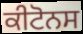
ਕੀਟੋਨਸ